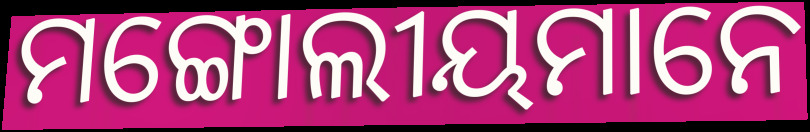
ମଙ୍ଗୋଲୀୟମାନେ